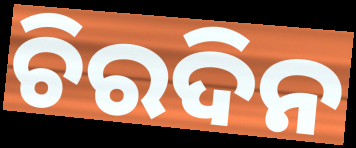
ଚିରଦିନ